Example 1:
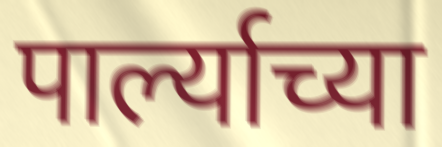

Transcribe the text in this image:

पार्ल्याच्या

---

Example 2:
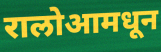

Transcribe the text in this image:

रालोआमधून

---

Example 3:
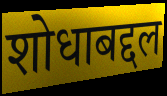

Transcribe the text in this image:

शोधाबद्दल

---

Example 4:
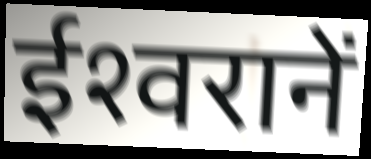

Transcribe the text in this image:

ईश्वरानें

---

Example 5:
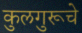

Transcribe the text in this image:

कुलगुरूचे